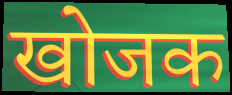
खोजक